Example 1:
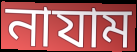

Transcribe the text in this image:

নাযাম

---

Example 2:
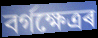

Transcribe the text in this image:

বৰ্গক্ষেত্ৰৰ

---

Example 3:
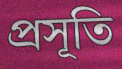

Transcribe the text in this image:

প্ৰসূতি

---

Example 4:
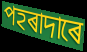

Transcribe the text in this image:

পহৰাদাৰে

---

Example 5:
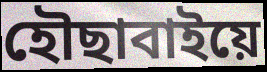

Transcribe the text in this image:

হৌছাবাইয়ে